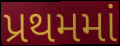
પ્રથમમાં